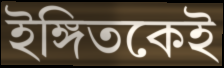
ইঙ্গিতকেই